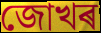
জোখৰ